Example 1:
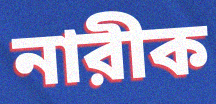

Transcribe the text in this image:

নারীক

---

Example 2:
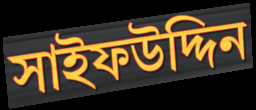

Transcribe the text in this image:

সাইফউদ্দিন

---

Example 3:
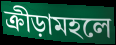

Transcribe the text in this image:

ক্রীড়ামহলে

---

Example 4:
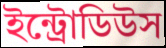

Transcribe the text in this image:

ইন্ট্রোডিউস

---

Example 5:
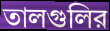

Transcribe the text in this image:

তালগুলির